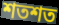
শতশত